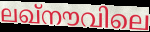
ലഖ്നൗവിലെ